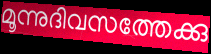
മൂന്നുദിവസത്തേക്കു